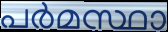
പർമസ്ഥാ